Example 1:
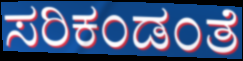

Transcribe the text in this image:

ಸರಿಕಂಡಂತೆ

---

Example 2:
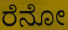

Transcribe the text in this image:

ರೆನೋ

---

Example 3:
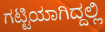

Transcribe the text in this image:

ಗಟ್ಟಿಯಾಗಿದ್ದಲ್ಲಿ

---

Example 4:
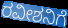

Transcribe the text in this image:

ರವೀಶನಿಗೆ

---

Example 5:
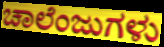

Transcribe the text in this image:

ಚಾಲೆಂಜುಗಳು